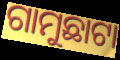
ଗାମୁଛାଟା